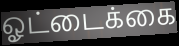
ஓட்டைக்கை